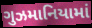
ગુઝમાનિયામાં